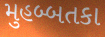
મુહબ્બતકા